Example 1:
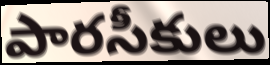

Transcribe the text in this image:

పారసీకులు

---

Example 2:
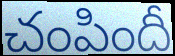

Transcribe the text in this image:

చంపిందీ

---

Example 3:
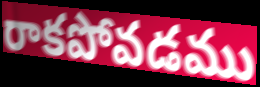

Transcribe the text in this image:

రాకపోవడము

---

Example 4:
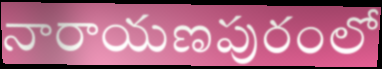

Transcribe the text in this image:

నారాయణపురంలో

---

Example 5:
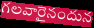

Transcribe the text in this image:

గలవారైనందున